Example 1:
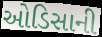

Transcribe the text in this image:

ઓડિસાની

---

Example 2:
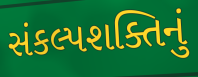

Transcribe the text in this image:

સંકલ્પશક્તિનું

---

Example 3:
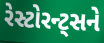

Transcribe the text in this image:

રેસ્ટોરન્ટ્સને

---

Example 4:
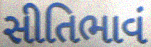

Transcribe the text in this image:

સીતિભાવં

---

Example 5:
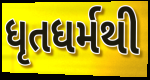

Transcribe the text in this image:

ધૃતધર્મથી